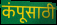
कंपूसाठी